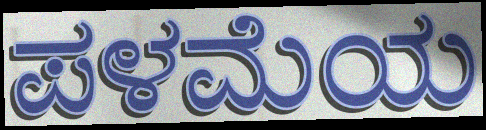
ಪಳಮೆಯ